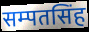
सम्पतसिंह